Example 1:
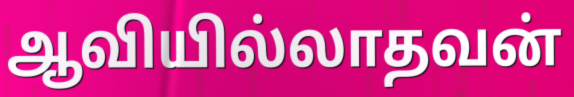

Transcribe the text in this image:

ஆவியில்லாதவன்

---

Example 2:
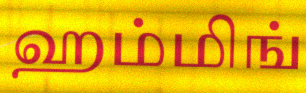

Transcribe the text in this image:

ஹம்மிங்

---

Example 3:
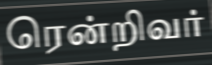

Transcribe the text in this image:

ரென்றிவர்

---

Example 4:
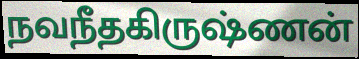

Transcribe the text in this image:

நவநீதகிருஷ்ணன்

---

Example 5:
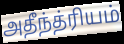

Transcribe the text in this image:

அதீந்த்ரியம்